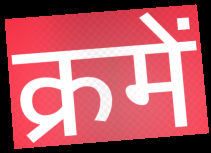
क्रमें